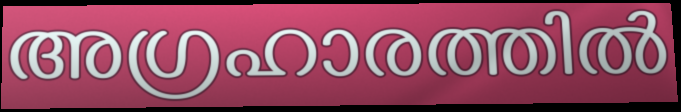
അഗ്രഹാരത്തിൽ